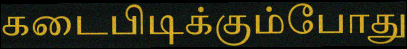
கடைபிடிக்கும்போது